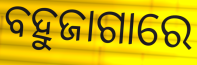
ବହୁଜାଗାରେ